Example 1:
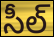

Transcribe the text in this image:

సీల్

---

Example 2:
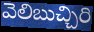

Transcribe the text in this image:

వెలిబుచ్చిరి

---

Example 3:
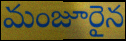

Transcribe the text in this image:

మంజూరైన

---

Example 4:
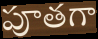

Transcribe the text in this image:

పూతగా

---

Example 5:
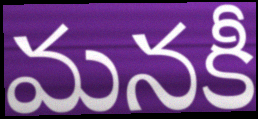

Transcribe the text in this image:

మనకీ